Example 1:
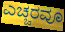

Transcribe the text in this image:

ಎಚ್ಚರವೂ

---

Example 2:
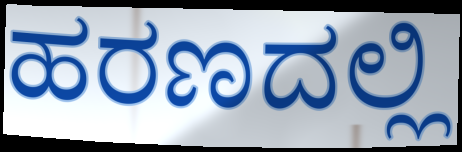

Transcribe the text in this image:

ಹರಣದಲ್ಲಿ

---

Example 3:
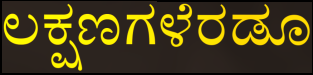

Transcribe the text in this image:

ಲಕ್ಷಣಗಳೆರಡೂ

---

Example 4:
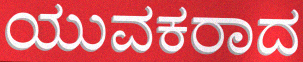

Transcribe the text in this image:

ಯುವಕರಾದ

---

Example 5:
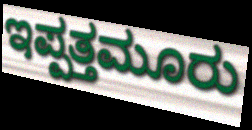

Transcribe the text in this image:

ಇಪ್ಪತ್ತಮೂರು